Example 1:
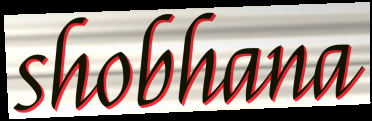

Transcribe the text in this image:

shobhana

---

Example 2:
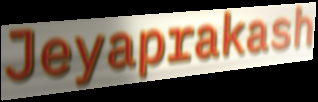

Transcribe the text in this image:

Jeyaprakash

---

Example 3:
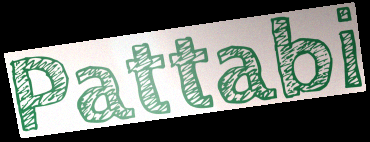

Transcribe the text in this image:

Pattabi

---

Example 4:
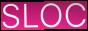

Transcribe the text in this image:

SLOC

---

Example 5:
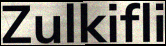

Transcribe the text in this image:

Zulkifli